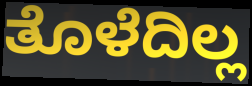
ತೊಳೆದಿಲ್ಲ